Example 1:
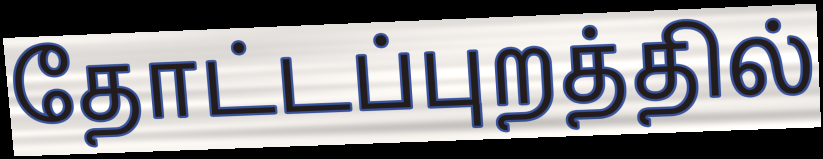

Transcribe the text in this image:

தோட்டப்புறத்தில்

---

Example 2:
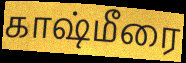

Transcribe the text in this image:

காஷ்மீரை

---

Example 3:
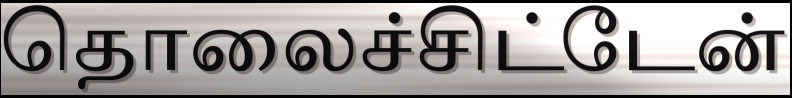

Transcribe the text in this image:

தொலைச்சிட்டேன்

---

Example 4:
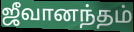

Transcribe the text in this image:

ஜீவானந்தம்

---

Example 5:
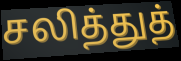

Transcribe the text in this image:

சலித்துத்